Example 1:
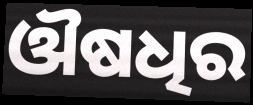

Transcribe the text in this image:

ଔଷଧିର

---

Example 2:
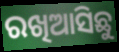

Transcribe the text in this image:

ରଖିଆସିଛୁ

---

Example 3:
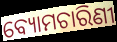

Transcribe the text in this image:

ବ୍ୟୋମଚାରିଣୀ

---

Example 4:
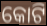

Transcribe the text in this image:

କୋଟି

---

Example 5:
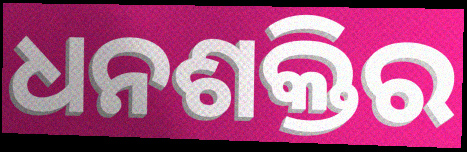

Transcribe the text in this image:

ଧନଶକ୍ତିର